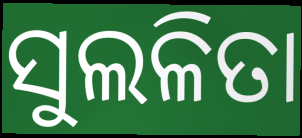
ସୁଲଳିତା